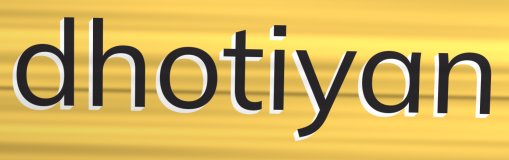
dhotiyan